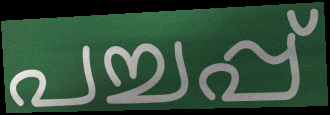
പച്ചപ്പ്